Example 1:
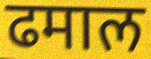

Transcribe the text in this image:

ढमाल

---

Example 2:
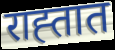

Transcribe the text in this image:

राह्तात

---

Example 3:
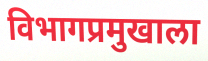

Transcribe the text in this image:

विभागप्रमुखाला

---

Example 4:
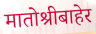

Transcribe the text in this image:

मातोश्रीबाहेर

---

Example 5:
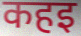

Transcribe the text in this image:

कहइ